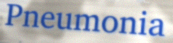
Pneumonia